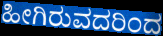
ಹೀಗಿರುವದರಿಂದ